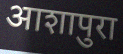
आशापुरा